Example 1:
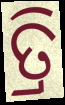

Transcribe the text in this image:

ତ୍ରି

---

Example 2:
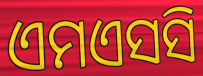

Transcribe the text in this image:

ଏମଏସସି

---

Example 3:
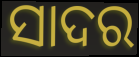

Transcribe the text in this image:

ସାଦର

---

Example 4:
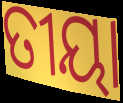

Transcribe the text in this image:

ତୀୟା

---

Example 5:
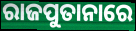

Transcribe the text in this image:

ରାଜପୁତାନାରେ